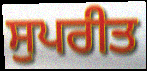
ਸੁਪਰੀਤ